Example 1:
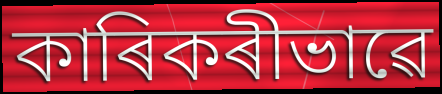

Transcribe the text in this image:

কাৰিকৰীভাৱে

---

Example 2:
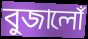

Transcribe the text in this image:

বুজালোঁ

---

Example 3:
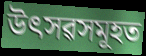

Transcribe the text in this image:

উৎসৱসমূহত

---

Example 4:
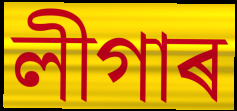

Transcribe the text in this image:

লীগাৰ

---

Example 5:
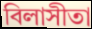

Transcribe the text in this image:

বিলাসীতা